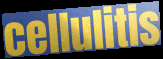
cellulitis